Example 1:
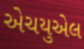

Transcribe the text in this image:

એચયુએલ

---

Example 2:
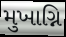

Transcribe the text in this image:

મુખાગ્નિ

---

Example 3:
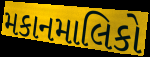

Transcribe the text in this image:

મકાનમાલિકો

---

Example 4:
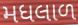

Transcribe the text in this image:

મધલાળ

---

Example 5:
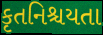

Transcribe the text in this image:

કૃતનિશ્ચયતા